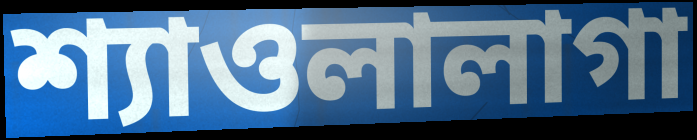
শ্যাওলালাগা